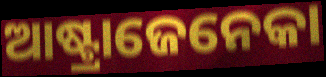
ଆଷ୍ଟ୍ରାଜେନେକା